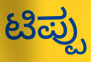
ಟಿಪ್ಪು